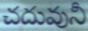
చదువునీ